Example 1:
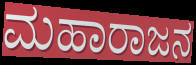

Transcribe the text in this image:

ಮಹಾರಾಜನ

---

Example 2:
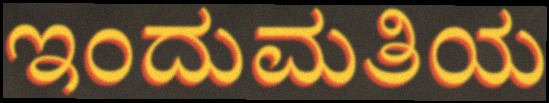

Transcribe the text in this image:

ಇಂದುಮತಿಯ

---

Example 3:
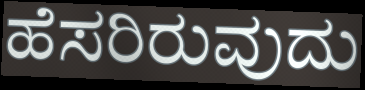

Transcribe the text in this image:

ಹೆಸರಿರುವುದು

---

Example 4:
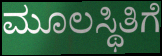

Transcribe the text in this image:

ಮೂಲಸ್ಥಿತಿಗೆ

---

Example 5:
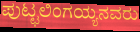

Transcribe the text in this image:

ಪುಟ್ಟಲಿಂಗಯ್ಯನವರು